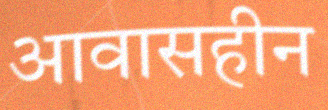
आवासहीन